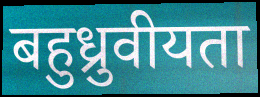
बहुध्रुवीयता